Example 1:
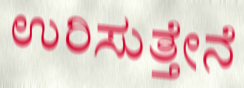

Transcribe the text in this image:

ಉರಿಸುತ್ತೇನೆ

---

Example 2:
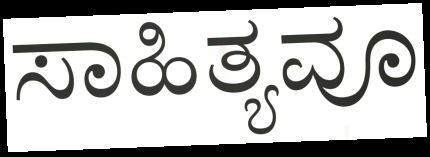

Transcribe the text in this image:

ಸಾಹಿತ್ಯವೂ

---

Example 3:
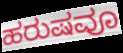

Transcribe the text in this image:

ಹರುಷವೂ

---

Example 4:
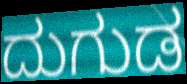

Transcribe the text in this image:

ದುಗುಡ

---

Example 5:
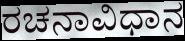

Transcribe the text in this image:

ರಚನಾವಿಧಾನ